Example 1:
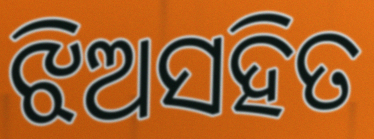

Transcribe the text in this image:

ଝିଅସହିତ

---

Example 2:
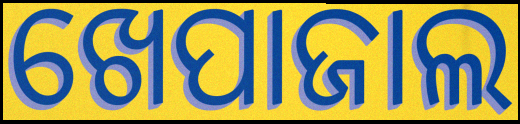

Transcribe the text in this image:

ଖେପାଜାଲ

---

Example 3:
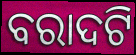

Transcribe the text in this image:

ବରାଦଟି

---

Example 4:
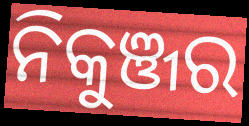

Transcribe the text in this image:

ନିକୁଞ୍ଜର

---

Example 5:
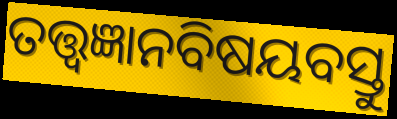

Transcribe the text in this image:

ତତ୍ତ୍ୱଜ୍ଞାନବିଷୟବସ୍ତୁ